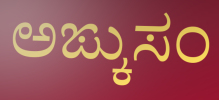
ಅಙ್ಕುಸಂ